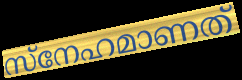
സ്നേഹമാണത്